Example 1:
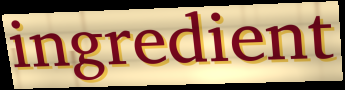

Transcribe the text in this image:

ingredient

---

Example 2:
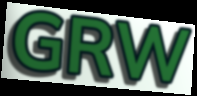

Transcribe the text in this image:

GRW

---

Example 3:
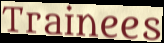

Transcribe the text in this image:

Trainees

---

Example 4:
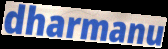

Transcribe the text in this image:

dharmanu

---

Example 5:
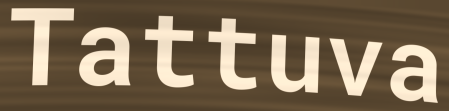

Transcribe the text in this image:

Tattuva